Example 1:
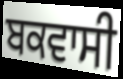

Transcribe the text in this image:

ਬਕਵਾਸੀ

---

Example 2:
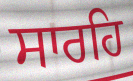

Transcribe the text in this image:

ਸਾਰਹਿ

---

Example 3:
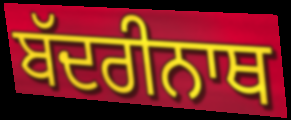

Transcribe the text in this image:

ਬੱਦਰੀਨਾਥ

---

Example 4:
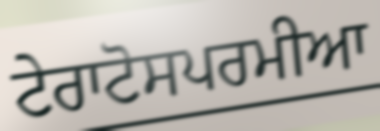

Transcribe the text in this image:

ਟੇਰਾਟੋਸਪਰਮੀਆ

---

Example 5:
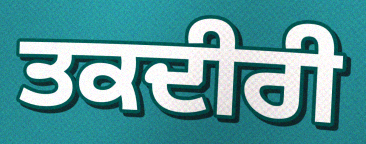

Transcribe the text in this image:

ਤਕਦੀਰੀ